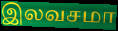
இலவசமா